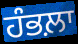
ਹੰਭਲ਼ਾ